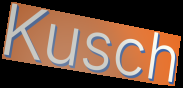
Kusch